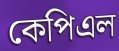
কেপিএল